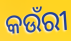
କଉଁରୀ